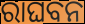
ରାଘବନ